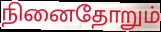
நினைதோறும்